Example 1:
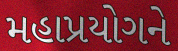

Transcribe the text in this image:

મહાપ્રયોગને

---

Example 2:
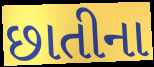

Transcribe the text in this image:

છાતીના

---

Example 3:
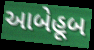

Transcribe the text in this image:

આબેહૂબ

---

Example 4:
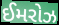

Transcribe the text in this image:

ઈમરોઝ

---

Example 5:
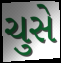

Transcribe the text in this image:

ચુસે